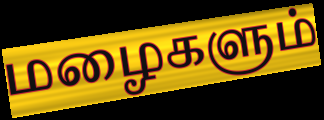
மழைகளும்